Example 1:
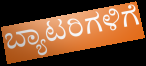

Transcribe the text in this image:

ಬ್ಯಾಟರಿಗಳಿಗೆ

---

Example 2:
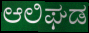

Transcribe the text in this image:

ಆಲಿಘಡ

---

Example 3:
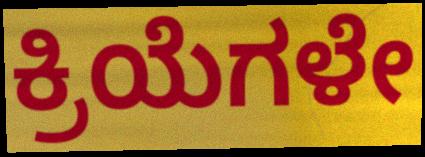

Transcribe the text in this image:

ಕ್ರಿಯೆಗಳೇ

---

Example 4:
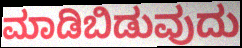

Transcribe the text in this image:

ಮಾಡಿಬಿಡುವುದು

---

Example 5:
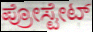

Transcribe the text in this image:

ಪ್ರೋಸ್ಟೇಟ್